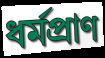
ধৰ্মপ্ৰাণ